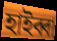
হাইব্বা